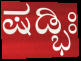
ಷಡ್ಭಿಃ